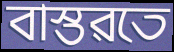
বাস্তৱতে